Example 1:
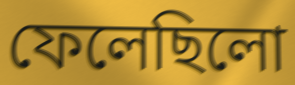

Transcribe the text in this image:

ফেলেছিলো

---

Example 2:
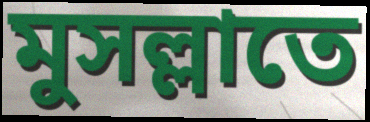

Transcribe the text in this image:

মুসল্লাতে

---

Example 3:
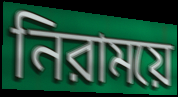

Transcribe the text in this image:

নিরাময়ে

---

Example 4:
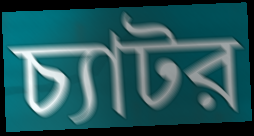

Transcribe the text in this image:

চ্যাটর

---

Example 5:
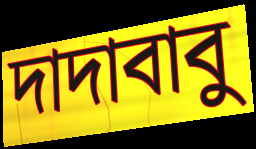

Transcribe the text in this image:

দাদাবাবু